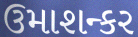
ઉમાશન્કર